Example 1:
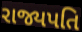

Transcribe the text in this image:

રાજ્યપતિ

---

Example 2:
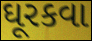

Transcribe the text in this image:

ઘૂરકવા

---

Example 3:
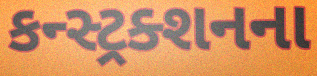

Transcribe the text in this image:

કન્સ્ટ્રક્શનના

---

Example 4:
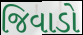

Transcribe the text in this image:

જિવાડો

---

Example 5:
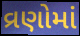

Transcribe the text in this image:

વ્રણોમાં